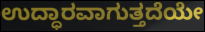
ಉದ್ಧಾರವಾಗುತ್ತದೆಯೇ